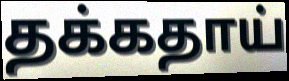
தக்கதாய்